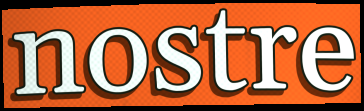
nostre